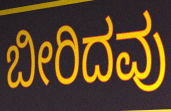
ಬೀರಿದವು